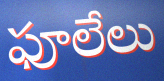
ఫూలేలు